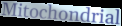
Mitochondrial